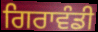
ਗਿਰਾਵੰਡੀ